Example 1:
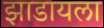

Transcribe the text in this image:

झाडायला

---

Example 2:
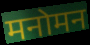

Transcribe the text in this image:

मनोमन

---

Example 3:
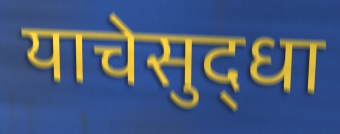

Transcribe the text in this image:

याचेसुद्धा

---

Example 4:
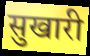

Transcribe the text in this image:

सुखारी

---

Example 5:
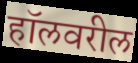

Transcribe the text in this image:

हॉलवरील